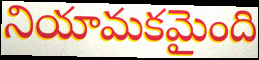
నియామకమైంది